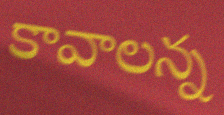
కావాలన్న